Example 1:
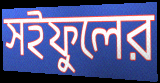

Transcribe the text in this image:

সইফুলের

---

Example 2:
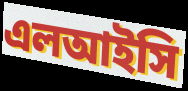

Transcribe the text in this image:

এলআইসি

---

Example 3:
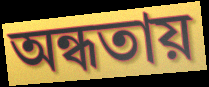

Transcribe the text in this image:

অন্ধতায়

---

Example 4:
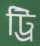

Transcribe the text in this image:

ট্রি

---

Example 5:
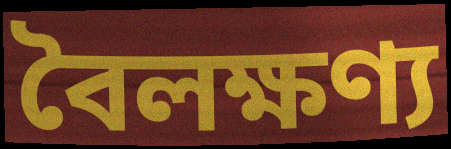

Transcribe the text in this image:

বৈলক্ষণ্য